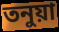
তনুয়া